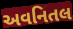
અવનિતલ